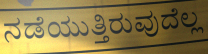
ನಡೆಯುತ್ತಿರುವುದೆಲ್ಲ